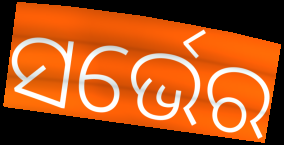
ସର୍ଭେର